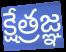
క్షేత్రజ్ఞ